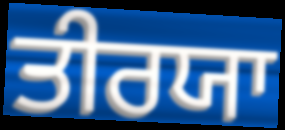
ਤੀਰਯਾ